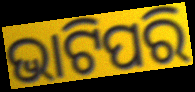
ଭାଟିପରି